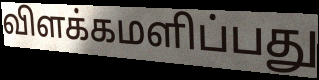
விளக்கமளிப்பது